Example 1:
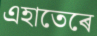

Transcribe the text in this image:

এহাতেৰে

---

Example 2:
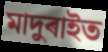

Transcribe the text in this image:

মাদুৰাইত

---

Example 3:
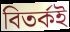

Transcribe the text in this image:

বিতৰ্কই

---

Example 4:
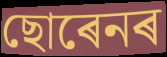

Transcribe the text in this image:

ছোৰেনৰ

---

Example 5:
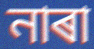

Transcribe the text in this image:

নাৰা